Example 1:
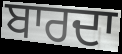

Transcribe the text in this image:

ਬਾਰਦਾ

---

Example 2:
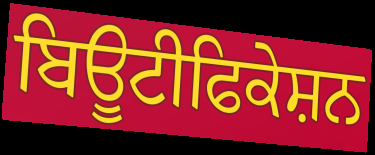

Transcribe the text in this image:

ਬਿਊਟੀਫਿਕੇਸ਼ਨ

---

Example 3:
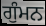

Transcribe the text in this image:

ਗੁੰਮਨ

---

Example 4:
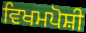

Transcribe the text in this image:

ਵਿਖਮਪੋਸ਼ੀ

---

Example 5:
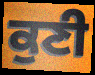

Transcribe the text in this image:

ਕੁਣੀ